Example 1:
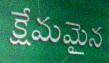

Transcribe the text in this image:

క్షేమమైన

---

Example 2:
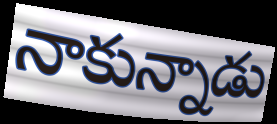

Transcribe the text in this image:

నాకున్నాడు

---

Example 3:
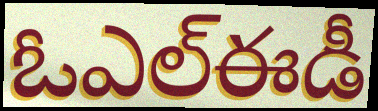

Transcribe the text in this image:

ఓఎల్ఈడీ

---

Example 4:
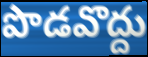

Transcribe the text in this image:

పొడవొద్దు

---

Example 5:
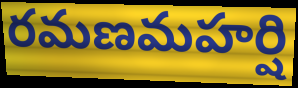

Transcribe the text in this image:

రమణమహర్షి